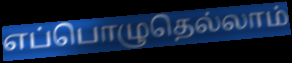
எப்பொழுதெல்லாம்